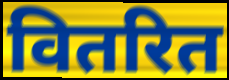
वितरित